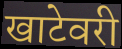
खाटेवरी